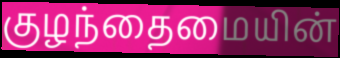
குழந்தைமையின்